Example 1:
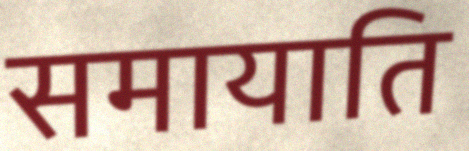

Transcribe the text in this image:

समायाति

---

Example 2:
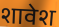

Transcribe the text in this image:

शावेश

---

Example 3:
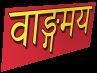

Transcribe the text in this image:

वाङ्गमय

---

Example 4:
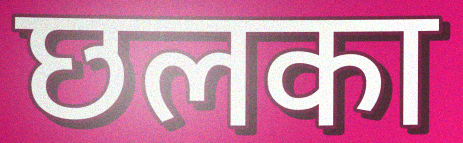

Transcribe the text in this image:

छलका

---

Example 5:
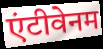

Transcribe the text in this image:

एंटीवेनम